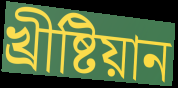
খ্ৰীষ্টিয়ান